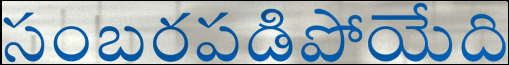
సంబరపడిపోయేది